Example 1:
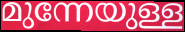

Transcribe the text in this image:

മുന്നേയുള്ള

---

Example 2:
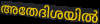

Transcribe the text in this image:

അതേദിശയിൽ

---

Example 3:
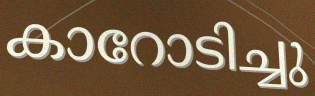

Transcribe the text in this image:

കാറോടിച്ചു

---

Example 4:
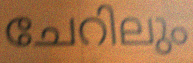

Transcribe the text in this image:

ചേറിലും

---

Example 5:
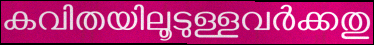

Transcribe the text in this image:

കവിതയിലൂടുള്ളവർക്കതു